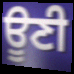
ਊਣੀ